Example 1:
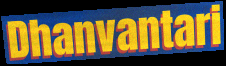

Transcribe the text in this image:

Dhanvantari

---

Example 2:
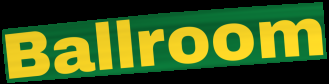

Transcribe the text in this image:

Ballroom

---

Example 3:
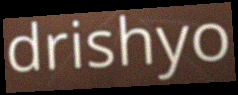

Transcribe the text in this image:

drishyo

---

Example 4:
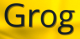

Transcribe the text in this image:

Grog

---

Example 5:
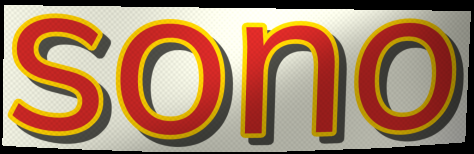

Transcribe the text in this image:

sono